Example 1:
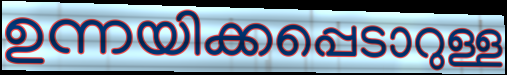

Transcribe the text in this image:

ഉന്നയിക്കപ്പെടാറുള്ള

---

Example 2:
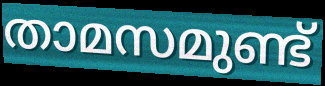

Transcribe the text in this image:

താമസമുണ്ട്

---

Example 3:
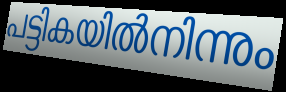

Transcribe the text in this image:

പട്ടികയിൽനിന്നും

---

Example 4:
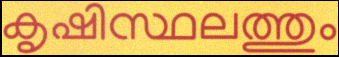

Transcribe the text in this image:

കൃഷിസ്ഥലത്തും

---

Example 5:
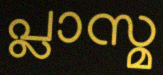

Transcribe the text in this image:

പ്ലാസ്മ